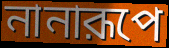
নানারূপে